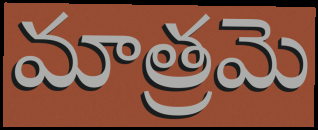
మాత్రమె